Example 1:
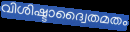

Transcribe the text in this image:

വിശിഷ്ടാദ്വൈതമതം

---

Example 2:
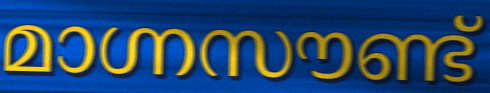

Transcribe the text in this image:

മാഗ്നസൗണ്ട്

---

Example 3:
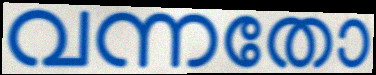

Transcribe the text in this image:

വന്നതോ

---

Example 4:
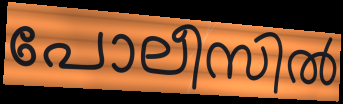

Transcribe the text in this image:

പോലീസിൽ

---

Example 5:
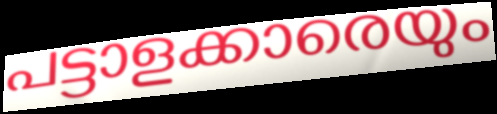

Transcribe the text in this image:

പട്ടാളക്കാരെയും